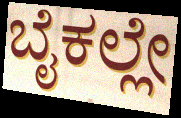
ಬೈಕಲ್ಲೇ